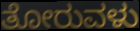
ತೋರುವಳು